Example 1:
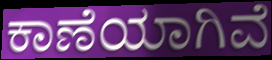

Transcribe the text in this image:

ಕಾಣೆಯಾಗಿವೆ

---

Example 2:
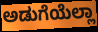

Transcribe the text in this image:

ಅಡುಗೆಯೆಲ್ಲಾ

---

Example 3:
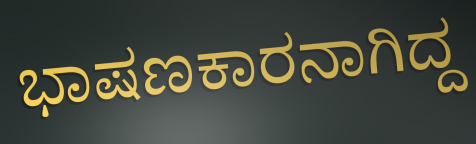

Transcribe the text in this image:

ಭಾಷಣಕಾರನಾಗಿದ್ದ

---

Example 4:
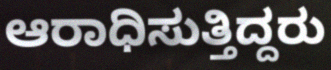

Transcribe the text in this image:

ಆರಾಧಿಸುತ್ತಿದ್ದರು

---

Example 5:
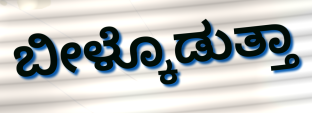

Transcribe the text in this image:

ಬೀಳ್ಕೊಡುತ್ತಾ